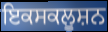
ਇਕਸਕਲੂਸ਼ਨ